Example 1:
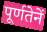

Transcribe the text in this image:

पूर्णतेनें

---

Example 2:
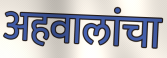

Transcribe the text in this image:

अहवालांचा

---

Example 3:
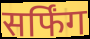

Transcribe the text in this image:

सर्फिंग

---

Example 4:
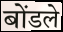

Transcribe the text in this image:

बोंडले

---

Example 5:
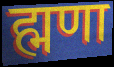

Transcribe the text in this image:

ह्मणा